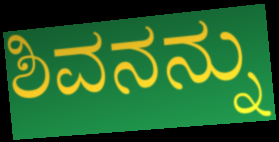
ಶಿವನನ್ನು